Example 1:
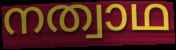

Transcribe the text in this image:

നത്വാഥ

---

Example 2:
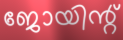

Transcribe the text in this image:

ജോയിന്റ്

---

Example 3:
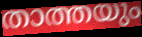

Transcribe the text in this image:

താത്തയും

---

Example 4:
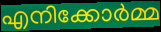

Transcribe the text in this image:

എനിക്കോർമ്മ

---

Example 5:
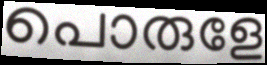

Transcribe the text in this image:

പൊരുളേ